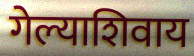
गेल्याशिवाय